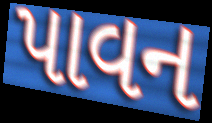
પાવન